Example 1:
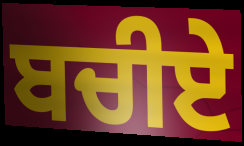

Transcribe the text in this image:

ਬਚੀਏ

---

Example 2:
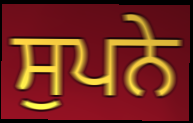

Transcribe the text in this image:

ਸੁਪਨੇ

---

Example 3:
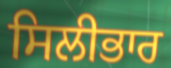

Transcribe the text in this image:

ਸਿਲੀਭਾਰ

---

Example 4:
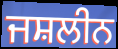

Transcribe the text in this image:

ਜਸ਼ਲੀਨ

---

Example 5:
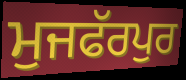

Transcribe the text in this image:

ਮੁਜਫੱਰਪੁਰ